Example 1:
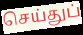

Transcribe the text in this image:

செய்துப்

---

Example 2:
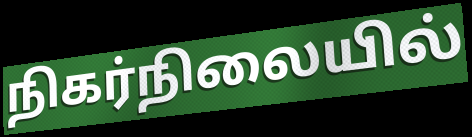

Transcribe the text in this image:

நிகர்நிலையில்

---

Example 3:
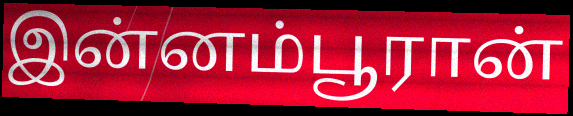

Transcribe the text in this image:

இன்னம்பூரான்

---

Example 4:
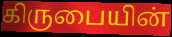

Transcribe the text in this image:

கிருபையின்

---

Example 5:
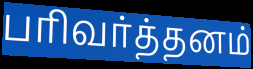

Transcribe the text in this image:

பரிவர்த்தனம்